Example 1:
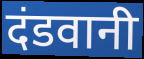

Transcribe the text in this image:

दंडवानी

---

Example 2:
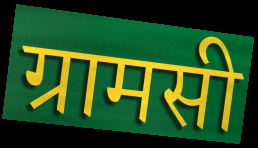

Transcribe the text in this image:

ग्रामसी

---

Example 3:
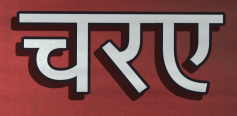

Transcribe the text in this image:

चरए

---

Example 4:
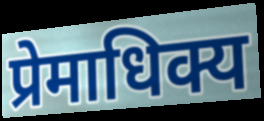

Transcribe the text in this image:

प्रेमाधिक्य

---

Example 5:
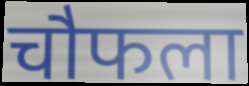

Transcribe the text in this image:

चौफला